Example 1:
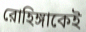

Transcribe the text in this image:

রোহিঙ্গাকেই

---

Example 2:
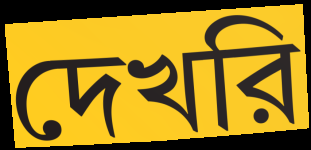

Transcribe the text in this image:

দেখরি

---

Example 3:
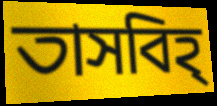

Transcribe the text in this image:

তাসবিহ্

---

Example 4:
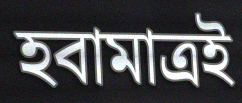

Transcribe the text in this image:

হবামাত্রই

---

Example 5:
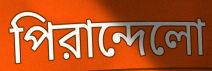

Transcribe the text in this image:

পিরান্দেলো